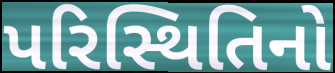
પરિસ્થિતિનો